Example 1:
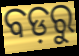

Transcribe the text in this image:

ବଡ଼ରୁ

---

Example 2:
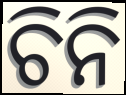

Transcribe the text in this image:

ଚିନି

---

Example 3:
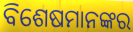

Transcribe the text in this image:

ବିଶେଷମାନଙ୍କର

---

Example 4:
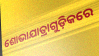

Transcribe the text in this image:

ଶୋଭାଯାତ୍ରାଗୁଡ଼ିକରେ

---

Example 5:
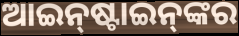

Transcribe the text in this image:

ଆଇନ୍‌ଷ୍ଟାଇନ୍‌ଙ୍କର